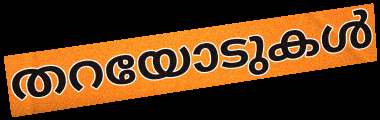
തറയോടുകൾ